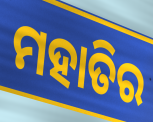
ମହାତିର